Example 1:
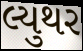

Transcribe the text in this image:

લ્યુથર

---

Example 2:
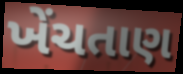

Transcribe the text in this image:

ખેંચતાણ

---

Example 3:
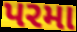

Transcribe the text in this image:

પરમા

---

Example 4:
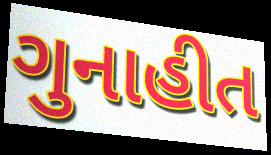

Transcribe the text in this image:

ગુનાહીત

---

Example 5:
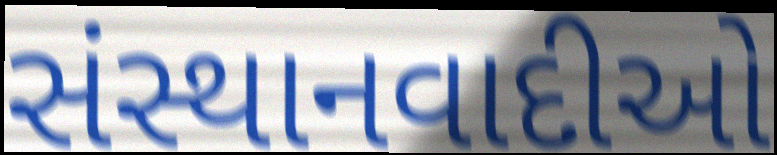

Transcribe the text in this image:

સંસ્થાનવાદીઓ